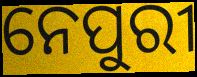
ନେପୁରୀ